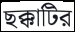
ছক্কাটির